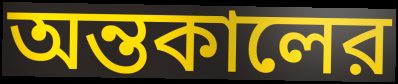
অন্তকালের